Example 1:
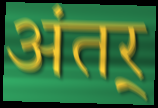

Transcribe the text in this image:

अंतर्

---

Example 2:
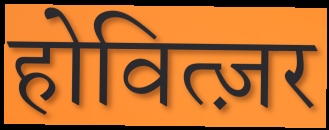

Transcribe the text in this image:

होवित्ज़र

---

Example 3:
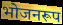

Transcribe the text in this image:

भोजनरूप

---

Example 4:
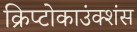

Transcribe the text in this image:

क्रिप्टोकाउंक्शंस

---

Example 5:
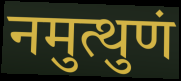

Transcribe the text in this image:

नमुत्थुणं